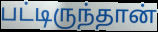
பட்டிருந்தான்